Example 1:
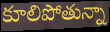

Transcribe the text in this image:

కూలిపోతున్నా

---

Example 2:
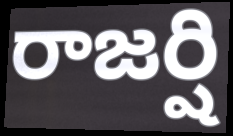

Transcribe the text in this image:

రాజర్షి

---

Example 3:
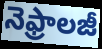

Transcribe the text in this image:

నెఫ్రాలజీ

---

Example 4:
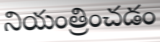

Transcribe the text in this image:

నియంత్రించడం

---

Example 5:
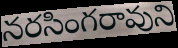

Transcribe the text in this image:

నరసింగరావుని